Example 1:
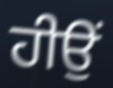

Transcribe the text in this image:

ਹੀਉਂ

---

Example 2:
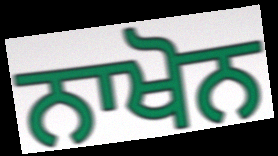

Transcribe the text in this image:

ਨਾਖੋਨ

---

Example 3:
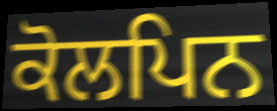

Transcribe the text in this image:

ਕੋਲਪਿਨ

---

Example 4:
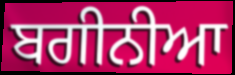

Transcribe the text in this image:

ਬਗੀਨੀਆ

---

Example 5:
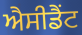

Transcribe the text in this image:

ਐਸੀਡੈਂਟ